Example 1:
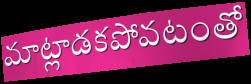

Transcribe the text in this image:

మాట్లాడకపోవటంతో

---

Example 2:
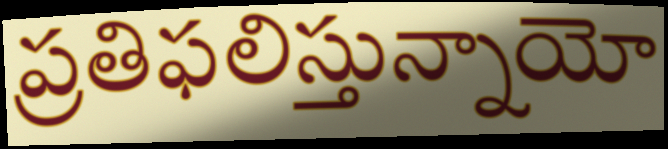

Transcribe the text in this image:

ప్రతిఫలిస్తున్నాయో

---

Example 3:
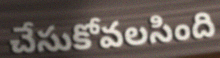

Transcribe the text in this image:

చేసుకోవలసింది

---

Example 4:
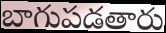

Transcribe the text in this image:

బాగుపడతారు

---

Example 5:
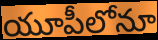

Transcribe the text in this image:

యూపీలోనూ